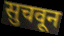
सुचवून